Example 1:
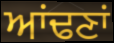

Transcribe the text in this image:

ਆਂਢਣਾਂ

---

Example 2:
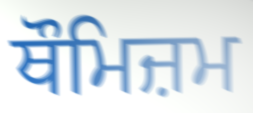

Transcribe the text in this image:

ਥੌਮਿਜ਼ਮ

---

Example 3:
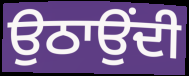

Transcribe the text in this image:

ਉਠਾਉਂਦੀ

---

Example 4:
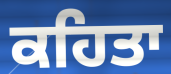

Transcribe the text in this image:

ਕਹਿਤਾ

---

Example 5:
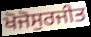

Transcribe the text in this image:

ਖੋਜੋਸੁਰਜੀਤ